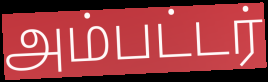
அம்பட்டர்